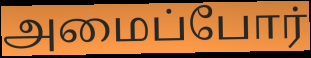
அமைப்போர்